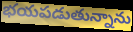
భయపడుతున్నాను